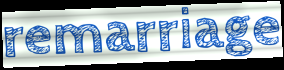
remarriage